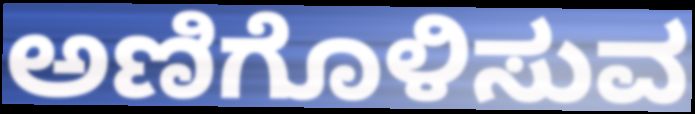
ಅಣಿಗೊಳಿಸುವ